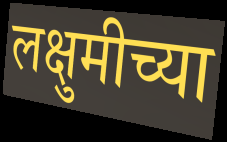
लक्षुमीच्या